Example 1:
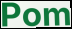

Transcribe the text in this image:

Pom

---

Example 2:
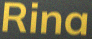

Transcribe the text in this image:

Rina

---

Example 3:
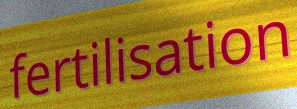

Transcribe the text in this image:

fertilisation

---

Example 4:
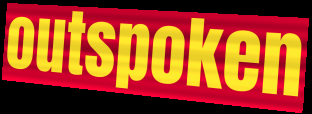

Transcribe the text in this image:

outspoken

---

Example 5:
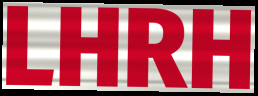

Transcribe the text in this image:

LHRH